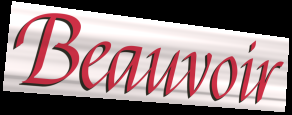
Beauvoir